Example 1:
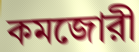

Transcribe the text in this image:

কমজোরী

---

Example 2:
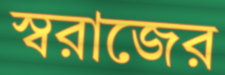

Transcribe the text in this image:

স্বরাজের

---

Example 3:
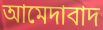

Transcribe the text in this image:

আমেদাবাদ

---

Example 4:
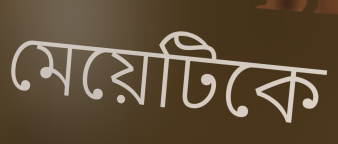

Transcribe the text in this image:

মেয়েটিকে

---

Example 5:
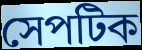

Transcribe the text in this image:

সেপটিক